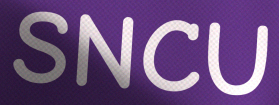
SNCU